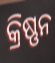
କ୍ରିଷ୍ଣନ